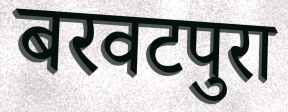
बरवटपुरा